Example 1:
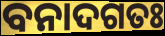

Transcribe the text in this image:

ବନାଦଗତଃ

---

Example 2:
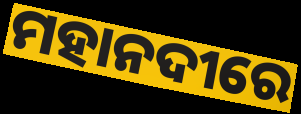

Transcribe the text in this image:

ମହାନଦୀରେ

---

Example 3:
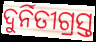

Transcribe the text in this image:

ଦୁର୍ନିତୀଗ୍ରସ୍ତ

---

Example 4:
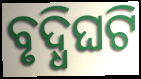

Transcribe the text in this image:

ବୃଦ୍ଧିଘଟି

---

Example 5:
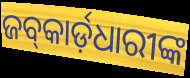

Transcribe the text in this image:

ଜବ୍‍କାର୍ଡ଼ଧାରୀଙ୍କ